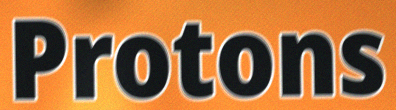
Protons